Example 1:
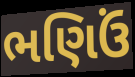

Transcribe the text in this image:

ભણિઉં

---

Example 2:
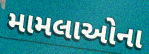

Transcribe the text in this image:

મામલાઓના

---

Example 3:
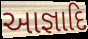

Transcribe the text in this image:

આજ્ઞાદિ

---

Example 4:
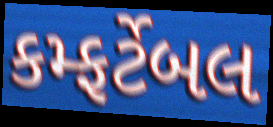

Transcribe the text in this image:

કમ્ફર્ટેબલ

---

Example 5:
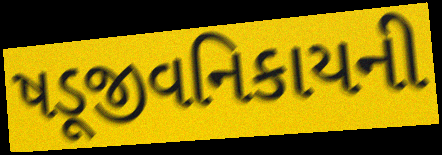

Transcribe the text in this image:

ષડૂજીવનિકાયની